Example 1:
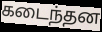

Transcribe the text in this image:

கடைந்தன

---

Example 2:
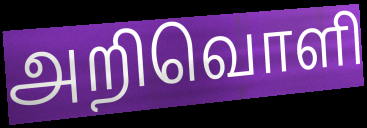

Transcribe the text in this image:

அறிவொளி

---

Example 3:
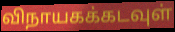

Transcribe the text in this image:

விநாயகக்கடவுள்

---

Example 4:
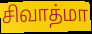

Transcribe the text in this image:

சிவாத்மா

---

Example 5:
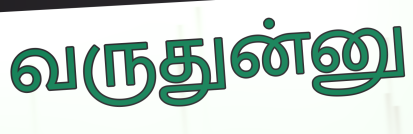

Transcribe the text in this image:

வருதுன்னு